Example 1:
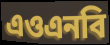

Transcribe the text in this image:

এওএনবি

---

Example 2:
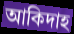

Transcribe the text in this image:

আকিদাহ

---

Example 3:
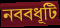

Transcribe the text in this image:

নববধূটি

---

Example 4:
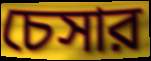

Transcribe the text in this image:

চেসার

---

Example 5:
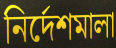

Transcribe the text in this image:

নির্দেশমালা